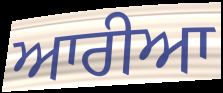
ਆਰੀਆ